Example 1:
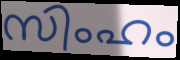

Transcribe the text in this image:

സിംഹം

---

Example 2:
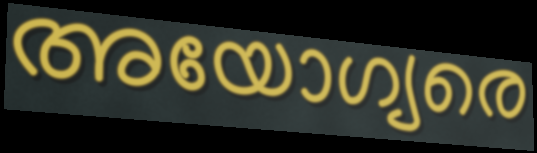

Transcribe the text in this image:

അയോഗ്യരെ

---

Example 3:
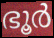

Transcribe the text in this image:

ഭൂർ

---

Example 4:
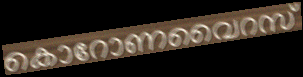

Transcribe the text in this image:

കൊറോണവൈറസ്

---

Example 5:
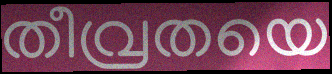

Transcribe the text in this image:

തീവ്രതയെ